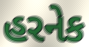
હરનેક